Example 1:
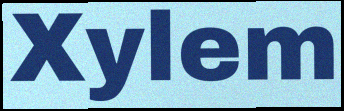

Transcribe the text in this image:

Xylem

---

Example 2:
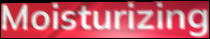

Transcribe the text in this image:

Moisturizing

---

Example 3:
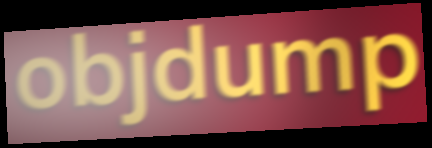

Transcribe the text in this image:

objdump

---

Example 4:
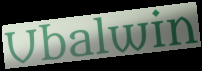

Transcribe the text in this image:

Ubalwin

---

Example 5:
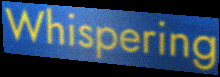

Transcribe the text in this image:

Whispering